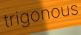
trigonous